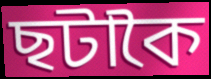
ছটাকৈ